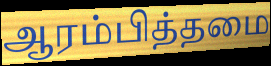
ஆரம்பித்தமை